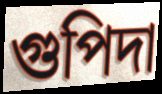
গুপিদা